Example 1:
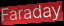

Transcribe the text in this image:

Faraday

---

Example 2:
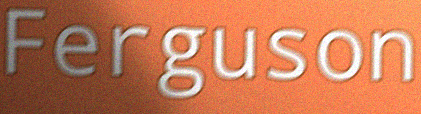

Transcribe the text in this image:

Ferguson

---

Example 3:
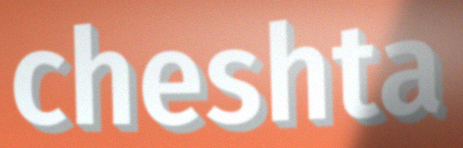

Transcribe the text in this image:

cheshta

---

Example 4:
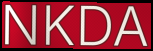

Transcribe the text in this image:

NKDA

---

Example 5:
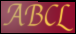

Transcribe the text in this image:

ABCL